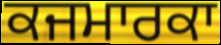
ਕਜਮਾਰਕਾ